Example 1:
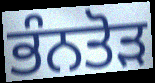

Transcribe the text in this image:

ਭੰਨਤੋੜ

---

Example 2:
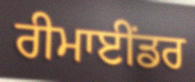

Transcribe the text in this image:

ਰੀਮਾਈਂਡਰ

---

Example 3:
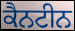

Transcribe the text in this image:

ਕੈਨਟੀਨ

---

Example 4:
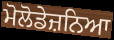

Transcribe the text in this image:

ਮੋਲੋਡੇਜ਼ਨਿਆ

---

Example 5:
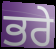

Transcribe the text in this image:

ਭਰੇ